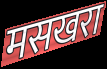
मसखरा